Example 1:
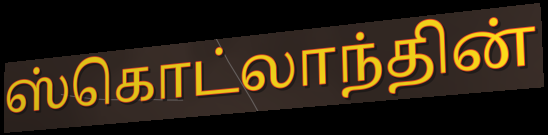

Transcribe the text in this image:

ஸ்கொட்லாந்தின்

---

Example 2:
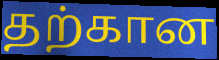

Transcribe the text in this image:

தற்கான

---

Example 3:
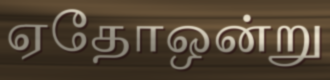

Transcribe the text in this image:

ஏதோஒன்று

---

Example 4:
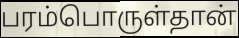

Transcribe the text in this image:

பரம்பொருள்தான்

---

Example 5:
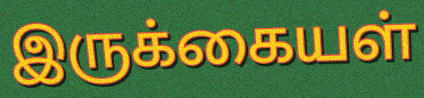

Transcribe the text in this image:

இருக்கையள்